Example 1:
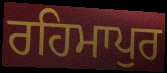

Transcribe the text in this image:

ਰਹਿਮਾਪੁਰ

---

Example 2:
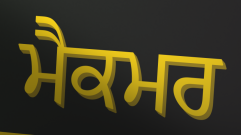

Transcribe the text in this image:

ਮੈਕਮਰ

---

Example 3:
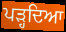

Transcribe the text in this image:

ਪੜ੍ਹਦਿਆ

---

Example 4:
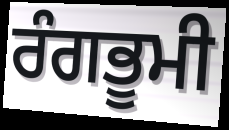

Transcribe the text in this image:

ਰੰਗਭੂਮੀ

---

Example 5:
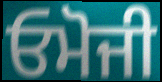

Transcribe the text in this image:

ਓਮੋਜੀ